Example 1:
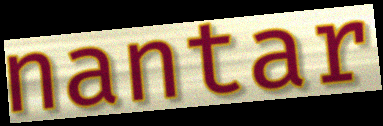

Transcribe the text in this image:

nantar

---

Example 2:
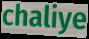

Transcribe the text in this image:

chaliye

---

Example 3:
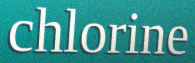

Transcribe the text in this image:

chlorine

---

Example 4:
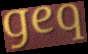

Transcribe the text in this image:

geq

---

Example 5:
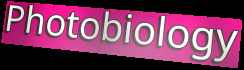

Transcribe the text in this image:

Photobiology